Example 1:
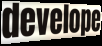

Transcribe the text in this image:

develope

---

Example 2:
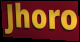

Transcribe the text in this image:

Jhoro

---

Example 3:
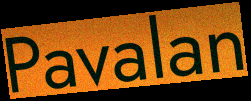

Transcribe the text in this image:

Pavalan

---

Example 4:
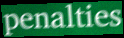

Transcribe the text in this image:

penalties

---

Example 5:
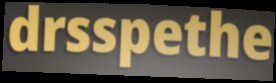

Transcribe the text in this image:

drsspethe